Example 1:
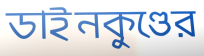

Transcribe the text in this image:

ডাইনকুণ্ডের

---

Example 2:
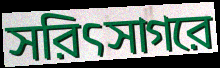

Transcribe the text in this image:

সরিৎসাগরে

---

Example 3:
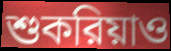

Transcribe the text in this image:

শুকরিয়াও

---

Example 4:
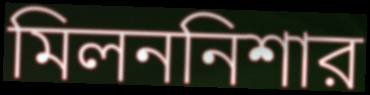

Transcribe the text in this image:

মিলননিশার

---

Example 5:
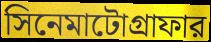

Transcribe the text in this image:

সিনেমাটোগ্রাফার